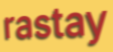
rastay